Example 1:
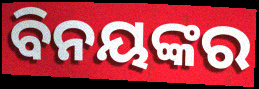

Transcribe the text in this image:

ବିନୟଙ୍କର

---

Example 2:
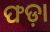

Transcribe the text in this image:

ଫଡ଼ା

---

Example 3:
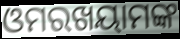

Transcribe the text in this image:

ଓମରଖୟାମଙ୍କ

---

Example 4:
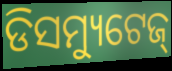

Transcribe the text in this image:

ଡିସମ୍ୟୁଟେଜ୍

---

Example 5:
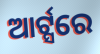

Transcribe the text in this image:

ଆର୍ଟ୍ସରେ